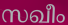
സഖീം